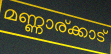
മണ്ണാര്ക്കാട്